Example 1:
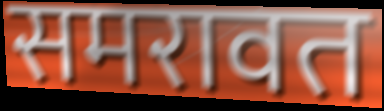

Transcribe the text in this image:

समरावत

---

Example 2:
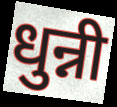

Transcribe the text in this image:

धुन्नी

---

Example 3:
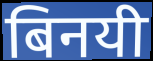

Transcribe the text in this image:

बिनयी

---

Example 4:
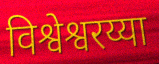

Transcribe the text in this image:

विश्वेश्वरय्या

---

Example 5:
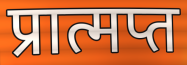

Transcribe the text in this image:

प्रात्मप्त